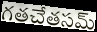
గతచేతసమ్